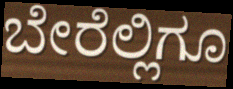
ಬೇರೆಲ್ಲಿಗೂ